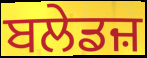
ਬਲੇਡਜ਼